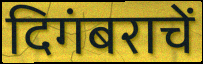
दिगंबराचें